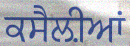
ਕਸੈਲ਼ੀਆਂ